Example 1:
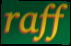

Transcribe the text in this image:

raff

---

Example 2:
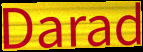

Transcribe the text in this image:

Darad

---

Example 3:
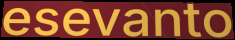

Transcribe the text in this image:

esevanto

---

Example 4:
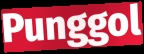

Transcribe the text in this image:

Punggol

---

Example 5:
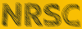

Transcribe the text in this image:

NRSC